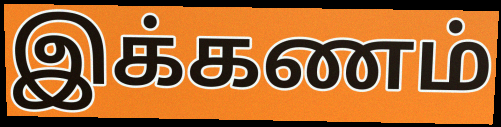
இக்கணம்